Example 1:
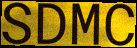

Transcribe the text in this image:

SDMC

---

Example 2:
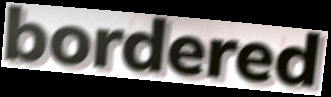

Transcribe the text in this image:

bordered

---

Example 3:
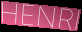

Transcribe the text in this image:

HENRI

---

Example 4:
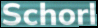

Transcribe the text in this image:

Schorl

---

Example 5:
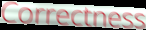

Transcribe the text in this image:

Correctness